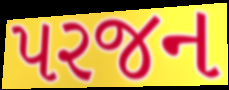
પરજન